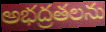
అభద్రతలను